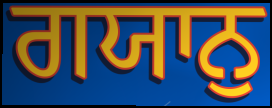
ਗਯਾਨੁ